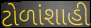
ટોળાંશાહી